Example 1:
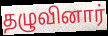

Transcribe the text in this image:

தழுவினார்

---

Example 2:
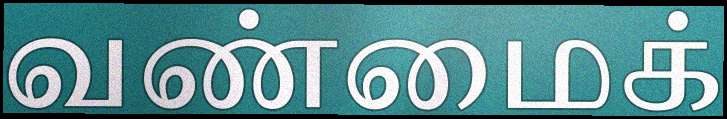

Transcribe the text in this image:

வண்மைக்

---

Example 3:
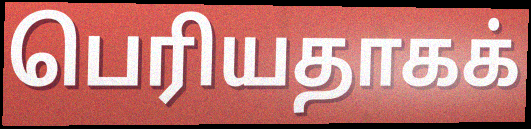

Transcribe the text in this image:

பெரியதாகக்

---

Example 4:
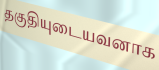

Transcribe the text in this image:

தகுதியுடையவனாக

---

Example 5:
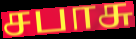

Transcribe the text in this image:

சபாசு